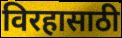
विरहासाठी